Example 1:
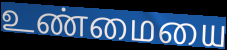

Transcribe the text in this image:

உண்மையை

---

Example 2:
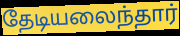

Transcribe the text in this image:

தேடியலைந்தார்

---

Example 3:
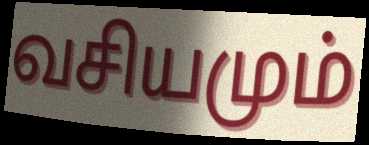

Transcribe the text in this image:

வசியமும்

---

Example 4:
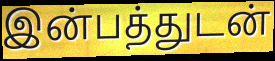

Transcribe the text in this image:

இன்பத்துடன்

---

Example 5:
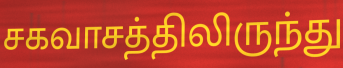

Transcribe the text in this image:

சகவாசத்திலிருந்து